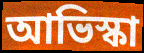
আভিস্কা